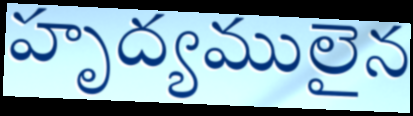
హృద్యములైన